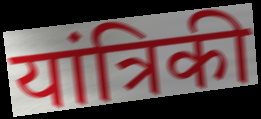
यांत्रिकी